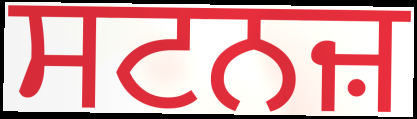
ਸਟਨਜ਼